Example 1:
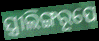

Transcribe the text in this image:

ସ୍ତ୍ରୀଲିଙ୍ଗରୂପେ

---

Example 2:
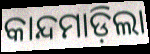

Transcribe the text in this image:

କାନ୍ଦମାଡ଼ିଲା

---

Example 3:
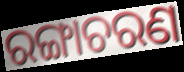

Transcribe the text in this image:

ରଙ୍ଗାଚରଣ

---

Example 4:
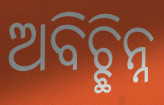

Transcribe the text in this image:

ଅବିଚ୍ଛିନ୍ନ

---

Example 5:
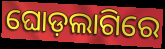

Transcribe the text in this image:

ଘୋଡ଼ଲାଗିରେ